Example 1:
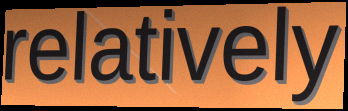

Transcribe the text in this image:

relatively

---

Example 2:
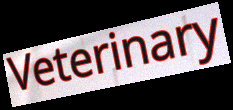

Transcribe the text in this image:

Veterinary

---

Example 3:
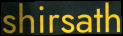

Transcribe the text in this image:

shirsath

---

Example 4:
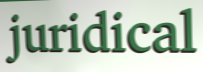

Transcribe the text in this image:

juridical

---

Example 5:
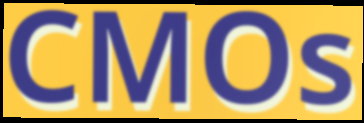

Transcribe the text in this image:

CMOs